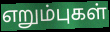
எறும்புகள்